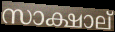
സാക്ഷാല്